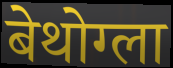
बेथोग्ला